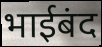
भाईबंद